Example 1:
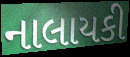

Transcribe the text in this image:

નાલાયકી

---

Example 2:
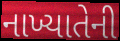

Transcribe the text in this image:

નાખ્યાતેની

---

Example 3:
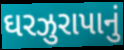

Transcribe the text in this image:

ઘરઝુરાપાનું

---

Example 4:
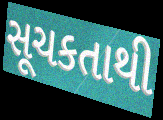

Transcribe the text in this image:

સૂચકતાથી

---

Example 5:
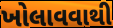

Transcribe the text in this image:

ખોલાવવાથી